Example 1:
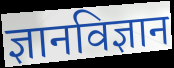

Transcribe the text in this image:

ज्ञानविज्ञान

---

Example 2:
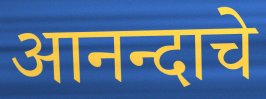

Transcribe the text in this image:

आनन्दाचे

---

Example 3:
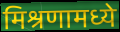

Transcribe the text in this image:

मिश्रणामध्ये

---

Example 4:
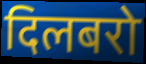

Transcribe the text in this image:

दिलबरो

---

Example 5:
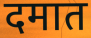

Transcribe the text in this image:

दमात